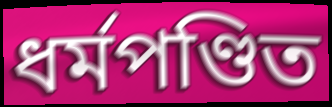
ধর্মপণ্ডিত